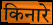
किनारे